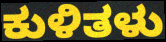
ಕುಳಿತಳು